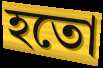
হতো